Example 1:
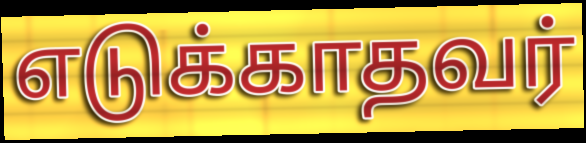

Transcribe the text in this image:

எடுக்காதவர்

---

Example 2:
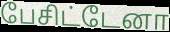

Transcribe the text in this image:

பேசிட்டேனா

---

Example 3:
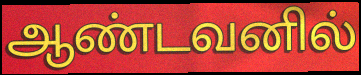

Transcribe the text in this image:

ஆண்டவனில்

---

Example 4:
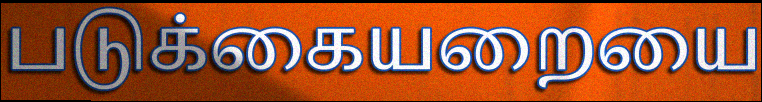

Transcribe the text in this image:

படுக்கையறையை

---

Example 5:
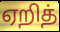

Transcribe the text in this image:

ஏறித்